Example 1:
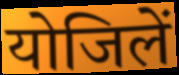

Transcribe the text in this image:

योजिलें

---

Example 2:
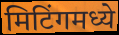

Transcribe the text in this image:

मिटिंगमध्ये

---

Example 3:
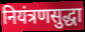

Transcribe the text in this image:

नियंत्रणसुद्धा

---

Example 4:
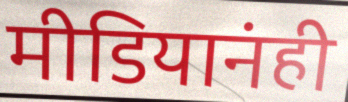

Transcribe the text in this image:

मीडियानंही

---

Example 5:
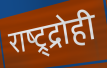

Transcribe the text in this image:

राष्ट्र्द्रोही